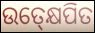
ଉତ୍କ୍ଷେପିତ